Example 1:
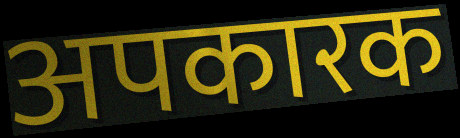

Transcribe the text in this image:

अपकारक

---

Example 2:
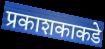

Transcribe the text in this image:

प्रकाशकाकडे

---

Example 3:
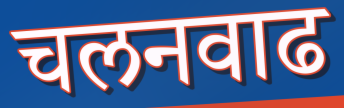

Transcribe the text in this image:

चलनवाढ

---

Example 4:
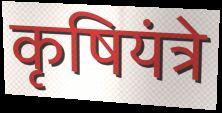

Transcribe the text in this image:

कृषियंत्रे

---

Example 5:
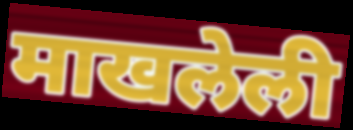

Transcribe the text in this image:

माखलेली